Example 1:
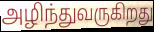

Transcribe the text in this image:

அழிந்துவருகிறது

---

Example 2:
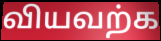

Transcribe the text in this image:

வியவற்க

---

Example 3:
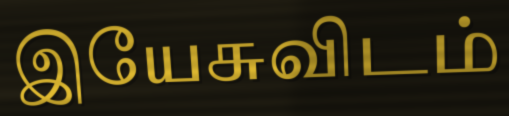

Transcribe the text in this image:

இயேசுவிடம்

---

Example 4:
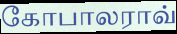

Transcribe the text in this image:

கோபாலராவ்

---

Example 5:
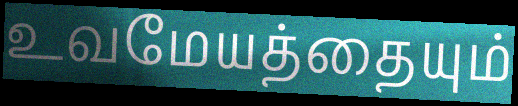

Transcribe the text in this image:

உவமேயத்தையும்